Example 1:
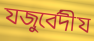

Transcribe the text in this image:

যজুর্বেদীয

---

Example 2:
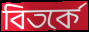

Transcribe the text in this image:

বিতর্কে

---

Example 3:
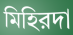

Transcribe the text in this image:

মিহিরদা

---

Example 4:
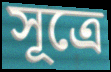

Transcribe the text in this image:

সূত্রে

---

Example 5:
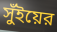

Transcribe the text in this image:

সুঁইয়ের